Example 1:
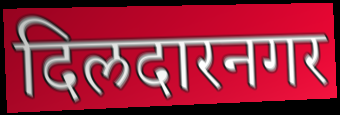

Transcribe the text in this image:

दिलदारनगर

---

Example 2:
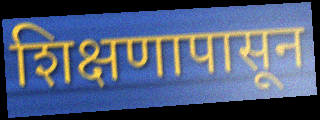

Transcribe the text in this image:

शिक्षणापासून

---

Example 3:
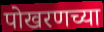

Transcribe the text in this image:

पोखरणच्या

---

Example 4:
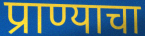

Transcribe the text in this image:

प्राण्याचा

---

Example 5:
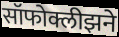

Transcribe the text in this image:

सॉफोक्लीझने